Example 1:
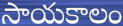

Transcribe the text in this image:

సాయకాలం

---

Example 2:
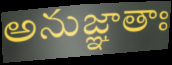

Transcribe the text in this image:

అనుజ్ఞాతాః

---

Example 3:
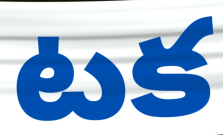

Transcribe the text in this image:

టక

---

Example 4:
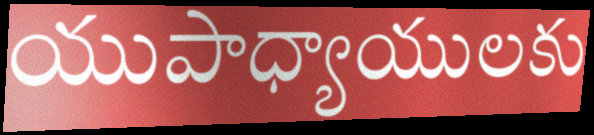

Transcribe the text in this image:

యుపాధ్యాయులకు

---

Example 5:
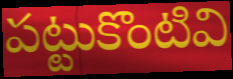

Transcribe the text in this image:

పట్టుకొంటివి